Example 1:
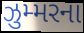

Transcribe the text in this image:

ઝુમ્મરના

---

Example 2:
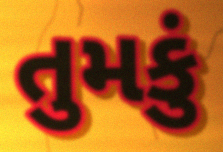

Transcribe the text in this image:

તુમકું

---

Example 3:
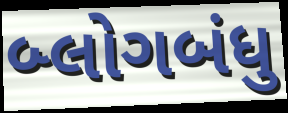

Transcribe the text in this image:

બ્લોગબંધુ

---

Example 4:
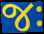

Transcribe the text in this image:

જઃ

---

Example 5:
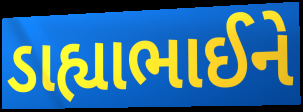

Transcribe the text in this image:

ડાહ્યાભાઈને